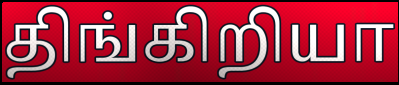
திங்கிறியா